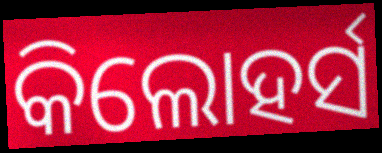
କିଲୋହର୍ସ